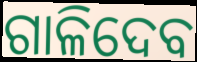
ଗାଳିଦେବ